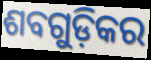
ଶବଗୁଡ଼ିକର